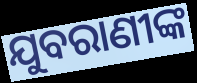
ଯୁବରାଣୀଙ୍କ